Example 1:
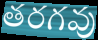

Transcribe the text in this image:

తరగవు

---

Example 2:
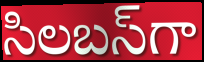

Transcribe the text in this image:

సిలబస్‌గా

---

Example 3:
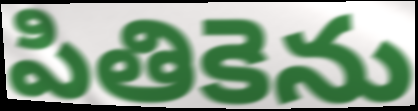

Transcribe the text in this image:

పితికెను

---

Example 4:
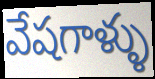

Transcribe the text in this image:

వేషగాళ్ళు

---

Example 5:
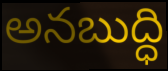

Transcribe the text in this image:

అనబుద్ధి